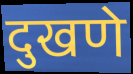
दुखणे